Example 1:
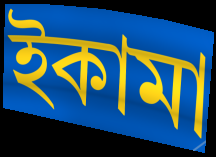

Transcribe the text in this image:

ইকামা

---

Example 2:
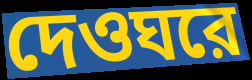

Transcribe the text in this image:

দেওঘরে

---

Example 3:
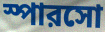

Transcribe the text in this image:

স্পারসো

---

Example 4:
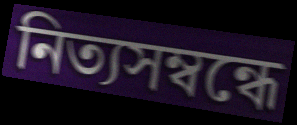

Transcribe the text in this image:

নিত্যসম্বন্ধে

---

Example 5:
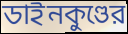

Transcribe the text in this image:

ডাইনকুণ্ডের